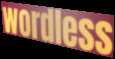
wordless